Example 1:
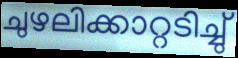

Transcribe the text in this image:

ചുഴലിക്കാറ്റടിച്ചു്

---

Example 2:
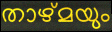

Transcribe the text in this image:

താഴ്മയും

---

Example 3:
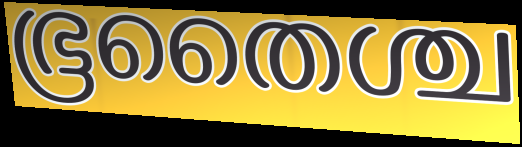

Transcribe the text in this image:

ഭൂതൈശ്ച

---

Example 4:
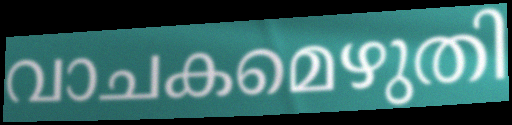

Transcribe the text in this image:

വാചകമെഴുതി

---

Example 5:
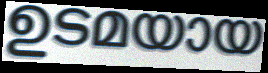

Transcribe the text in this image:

ഉടമയായ